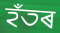
হঁতৰ